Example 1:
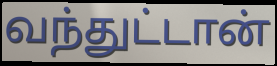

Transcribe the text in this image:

வந்துட்டான்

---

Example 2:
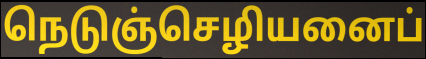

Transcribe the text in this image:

நெடுஞ்செழியனைப்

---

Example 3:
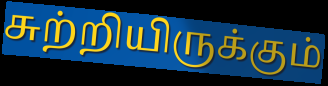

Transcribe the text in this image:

சுற்றியிருக்கும்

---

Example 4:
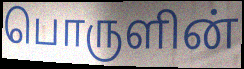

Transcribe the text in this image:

பொருளின்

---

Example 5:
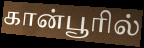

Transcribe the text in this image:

கான்பூரில்